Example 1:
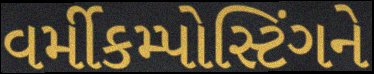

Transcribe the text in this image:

વર્મીકમ્પોસ્ટિંગને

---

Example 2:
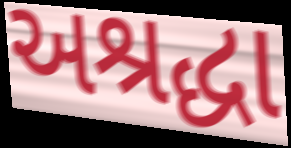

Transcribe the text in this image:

અશ્રદ્ધા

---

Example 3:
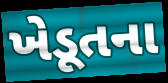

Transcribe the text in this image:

ખેડૂતના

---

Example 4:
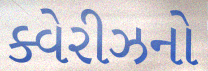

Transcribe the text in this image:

ક્વેરીઝનો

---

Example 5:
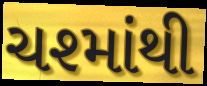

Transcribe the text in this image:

ચશ્માંથી